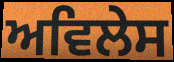
ਅਵਿਲੇਸ